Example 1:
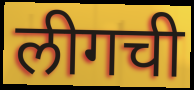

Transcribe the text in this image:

लीगची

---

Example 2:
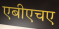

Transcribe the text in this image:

एबीएचए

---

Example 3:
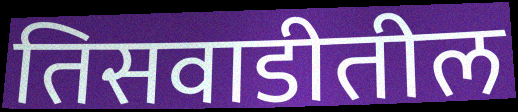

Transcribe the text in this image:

तिसवाडीतील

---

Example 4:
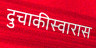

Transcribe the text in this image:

दुचाकीस्वारास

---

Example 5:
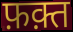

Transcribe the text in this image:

फ़क़्त